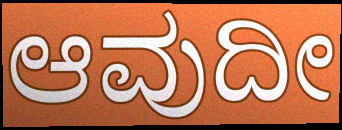
ಆವುದೀ